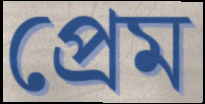
প্ৰেম